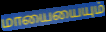
மாயையையும்